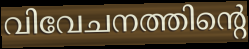
വിവേചനത്തിന്റെ